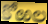
కోఱల